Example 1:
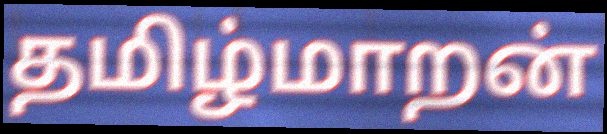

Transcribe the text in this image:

தமிழ்மாறன்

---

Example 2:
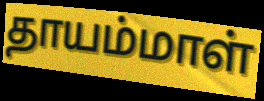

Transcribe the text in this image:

தாயம்மாள்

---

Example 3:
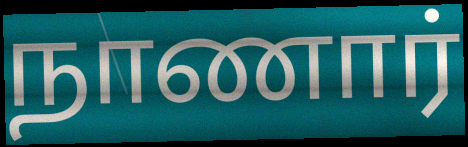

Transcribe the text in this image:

நாணார்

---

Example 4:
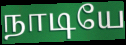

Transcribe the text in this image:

நாடியே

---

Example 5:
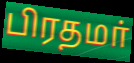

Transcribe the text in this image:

பிரதமர்